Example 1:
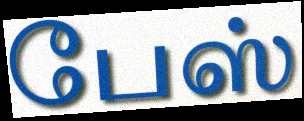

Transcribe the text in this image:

பேஸ்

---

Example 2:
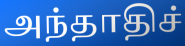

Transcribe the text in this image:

அந்தாதிச்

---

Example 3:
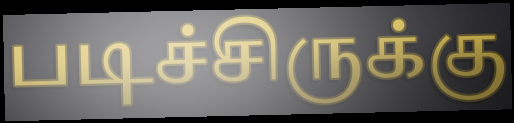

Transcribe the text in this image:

படிச்சிருக்கு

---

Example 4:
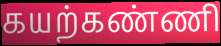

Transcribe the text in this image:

கயற்கண்ணி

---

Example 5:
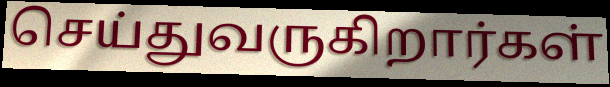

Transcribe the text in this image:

செய்துவருகிறார்கள்